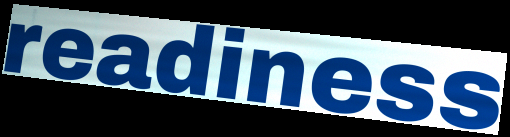
readiness